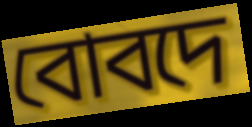
বোবদে